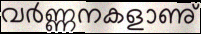
വർണ്ണനകളാണു്